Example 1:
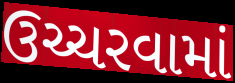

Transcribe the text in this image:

ઉચ્ચરવામાં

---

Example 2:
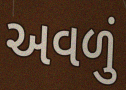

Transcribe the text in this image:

અવળું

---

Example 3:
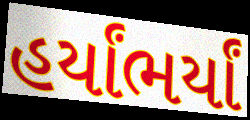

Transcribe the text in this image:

હર્યાંભર્યાં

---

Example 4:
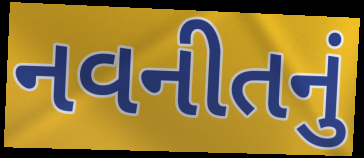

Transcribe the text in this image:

નવનીતનું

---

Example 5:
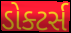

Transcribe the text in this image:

ડોક્ટર્સ